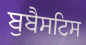
ਬੁਬੈਸਟਿਸ